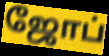
ஜோப்